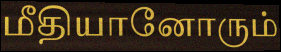
மீதியானோரும்